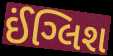
ઈંગ્લિશ